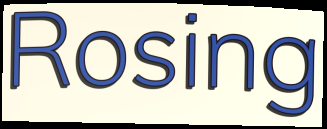
Rosing